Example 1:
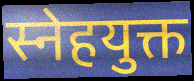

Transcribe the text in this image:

स्नेहयुक्त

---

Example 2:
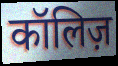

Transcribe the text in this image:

कॉलिज़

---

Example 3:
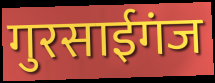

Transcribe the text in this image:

गुरसाईगंज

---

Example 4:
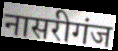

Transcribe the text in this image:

नासरीगंज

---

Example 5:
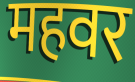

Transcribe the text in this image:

महवर